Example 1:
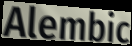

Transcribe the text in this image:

Alembic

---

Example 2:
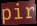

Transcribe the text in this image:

pir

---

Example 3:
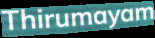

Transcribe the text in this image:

Thirumayam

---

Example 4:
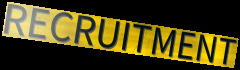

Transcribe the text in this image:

RECRUITMENT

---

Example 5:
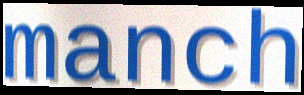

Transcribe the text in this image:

manch